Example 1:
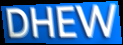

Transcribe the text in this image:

DHEW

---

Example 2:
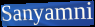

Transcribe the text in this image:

Sanyamni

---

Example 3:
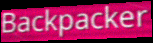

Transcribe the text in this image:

Backpacker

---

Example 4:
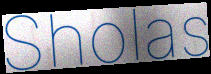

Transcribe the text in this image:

Sholas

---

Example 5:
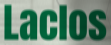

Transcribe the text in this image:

Laclos